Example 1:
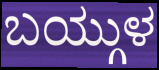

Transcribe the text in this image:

ಬಯ್ಗುಳ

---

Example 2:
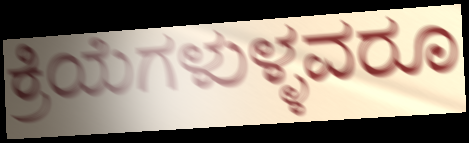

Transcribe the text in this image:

ಕ್ರಿಯೆಗಳುಳ್ಳವರೂ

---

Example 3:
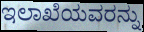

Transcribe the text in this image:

ಇಲಾಖೆಯವರನ್ನು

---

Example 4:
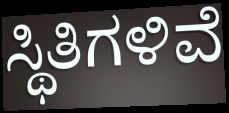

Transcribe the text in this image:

ಸ್ಥಿತಿಗಳಿವೆ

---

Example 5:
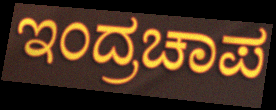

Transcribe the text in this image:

ಇಂದ್ರಚಾಪ